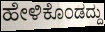
ಹೇಳಿಕೊಂಡದ್ದು